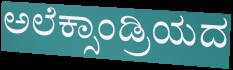
ಅಲೆಕ್ಸಾಂಡ್ರಿಯದ